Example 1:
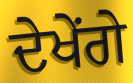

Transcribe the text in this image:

ਦੇਖੇਂਗੇ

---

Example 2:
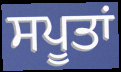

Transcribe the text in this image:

ਸਪੂਤਾਂ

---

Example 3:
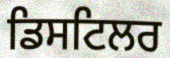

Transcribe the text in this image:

ਡਿਸਟਿਲਰ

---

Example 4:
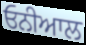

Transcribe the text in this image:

ਓਨੀਆਲ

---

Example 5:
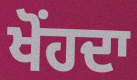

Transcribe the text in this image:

ਖੋਂਹਦਾ